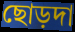
ছোড়দা